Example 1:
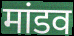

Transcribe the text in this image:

मांडव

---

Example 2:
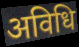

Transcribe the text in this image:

अविधि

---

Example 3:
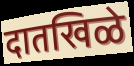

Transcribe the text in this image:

दातखिळे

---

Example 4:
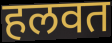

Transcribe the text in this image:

हलवत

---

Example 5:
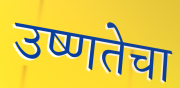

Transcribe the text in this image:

उष्णतेचा